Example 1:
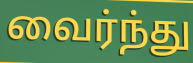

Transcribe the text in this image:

வைர்ந்து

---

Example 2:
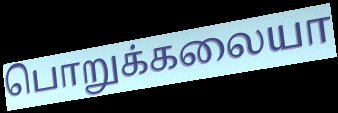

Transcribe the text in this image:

பொறுக்கலையா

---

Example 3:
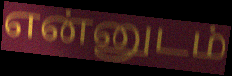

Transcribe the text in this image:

என்னுடம்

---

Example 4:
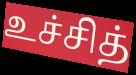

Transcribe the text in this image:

உச்சித்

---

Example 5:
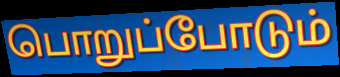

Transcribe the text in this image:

பொறுப்போடும்